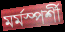
মৰ্মস্পৰ্শী